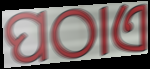
ପଠାଏ